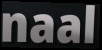
naal